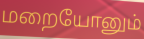
மறையோனும்